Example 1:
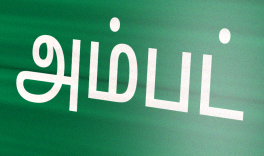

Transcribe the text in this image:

அம்பட்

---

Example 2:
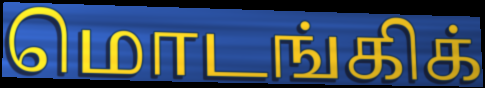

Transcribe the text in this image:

மொடங்கிக்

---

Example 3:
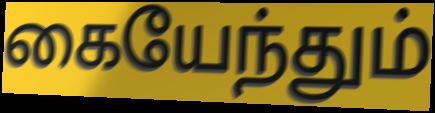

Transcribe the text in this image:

கையேந்தும்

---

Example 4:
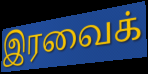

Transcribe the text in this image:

இரவைக்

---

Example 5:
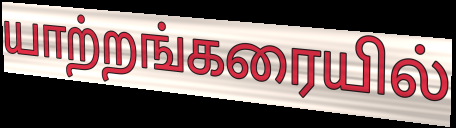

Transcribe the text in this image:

யாற்றங்கரையில்